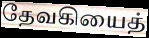
தேவகியைத்